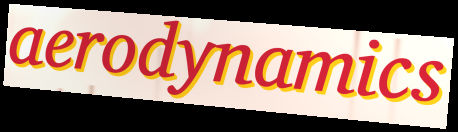
aerodynamics